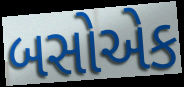
બસોએક